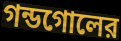
গন্ডগোলের